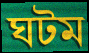
ঘটম